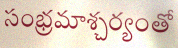
సంభ్రమాశ్చర్యంతో